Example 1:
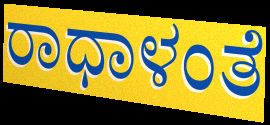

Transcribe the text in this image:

ರಾಧಾಳಂತೆ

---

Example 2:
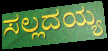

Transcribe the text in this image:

ಸಲ್ಲದಯ್ಯ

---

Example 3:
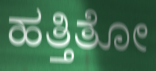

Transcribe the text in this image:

ಹತ್ತಿತೋ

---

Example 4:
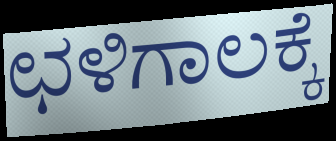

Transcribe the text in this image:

ಛಳಿಗಾಲಕ್ಕೆ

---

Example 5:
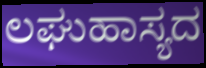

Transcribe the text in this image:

ಲಘುಹಾಸ್ಯದ